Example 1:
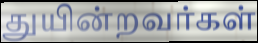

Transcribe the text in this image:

துயின்றவர்கள்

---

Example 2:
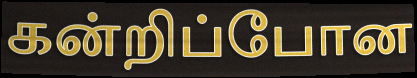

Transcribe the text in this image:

கன்றிப்போன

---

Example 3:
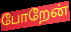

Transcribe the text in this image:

போறேன்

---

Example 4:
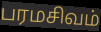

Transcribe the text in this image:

பரமசிவம்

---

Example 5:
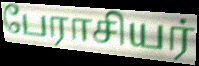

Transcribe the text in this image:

பேராசியர்